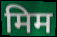
मिम